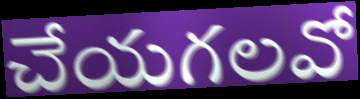
చేయగలవో